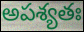
అపశ్యతః